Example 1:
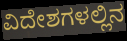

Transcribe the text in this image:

ವಿದೇಶಗಳಲ್ಲಿನ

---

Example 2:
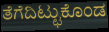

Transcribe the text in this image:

ತೆಗೆದಿಟ್ಟುಕೊಂಡ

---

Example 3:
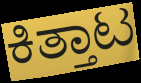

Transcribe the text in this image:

ಕಿತ್ತಾಟ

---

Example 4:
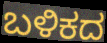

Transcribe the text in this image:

ಬಳಿಕದ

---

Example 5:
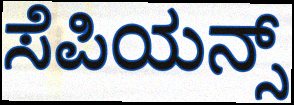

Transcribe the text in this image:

ಸೆಪಿಯನ್ಸ್